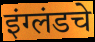
इंग्लंडचे